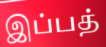
இப்பத்